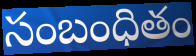
సంబంధితం